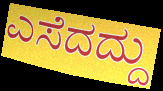
ಎಸೆದದ್ದು